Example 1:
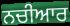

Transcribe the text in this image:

ਨਚੀਆਰ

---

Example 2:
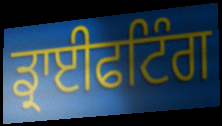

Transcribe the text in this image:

ਡ੍ਰਾਈਫਟਿੰਗ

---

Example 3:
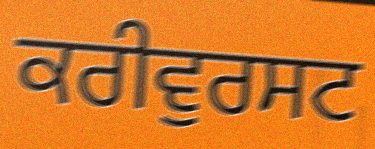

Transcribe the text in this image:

ਕਰੀਵੁਰਸਟ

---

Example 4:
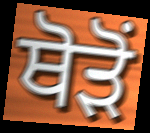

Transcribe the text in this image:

ਥੋੜੋਂ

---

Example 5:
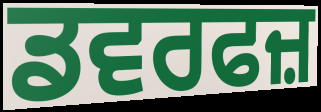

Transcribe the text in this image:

ਡਵਰਫਜ਼